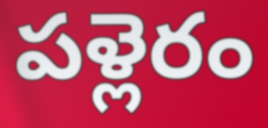
పళ్లెరం